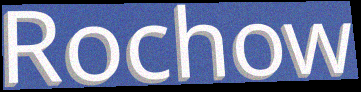
Rochow